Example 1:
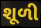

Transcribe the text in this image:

શૂળી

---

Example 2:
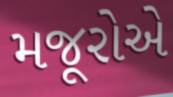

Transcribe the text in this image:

મજૂરોએ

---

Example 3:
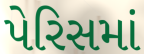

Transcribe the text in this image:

પેરિસમાં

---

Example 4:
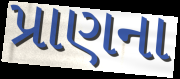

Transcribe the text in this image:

પ્રાણના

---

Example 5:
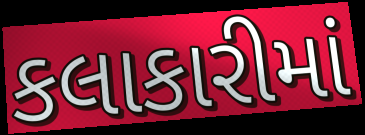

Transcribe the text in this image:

કલાકારીમાં